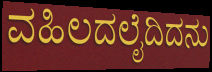
ವಹಿಲದಲೈದಿದನು